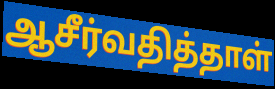
ஆசீர்வதித்தாள்